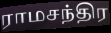
ராமசந்திர